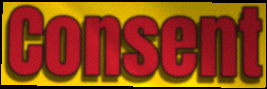
Consent